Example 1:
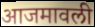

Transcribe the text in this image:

आजमावली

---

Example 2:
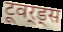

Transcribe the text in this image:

टूवर्ड्स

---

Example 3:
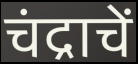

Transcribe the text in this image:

चंद्राचें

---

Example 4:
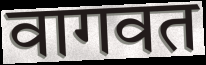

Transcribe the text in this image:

वागवत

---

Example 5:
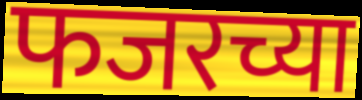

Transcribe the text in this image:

फजरच्या